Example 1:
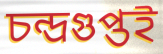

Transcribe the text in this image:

চন্দ্ৰগুপ্তই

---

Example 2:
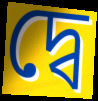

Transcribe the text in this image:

দ্বে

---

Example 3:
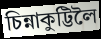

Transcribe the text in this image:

চিন্নাকুট্টিলৈ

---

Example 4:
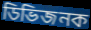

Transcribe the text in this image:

ডিভিজনক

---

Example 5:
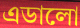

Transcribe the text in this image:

এডালো